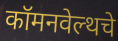
कॉमनवेल्थचे